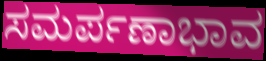
ಸಮರ್ಪಣಾಭಾವ